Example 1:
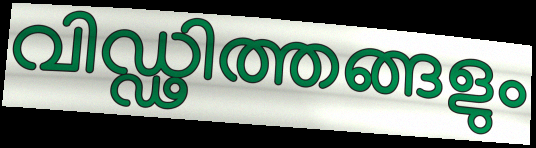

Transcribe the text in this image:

വിഡ്ഢിത്തങ്ങളും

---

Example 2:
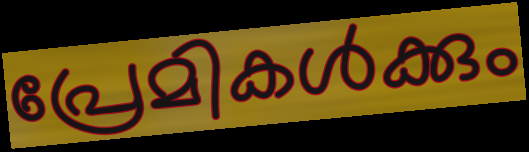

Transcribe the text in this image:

പ്രേമികൾക്കും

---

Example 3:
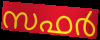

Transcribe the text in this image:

സഫർ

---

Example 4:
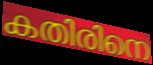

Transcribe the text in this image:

കതിരിനെ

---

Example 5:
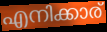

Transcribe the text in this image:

എനിക്കാര്